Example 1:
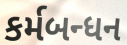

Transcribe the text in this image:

કર્મબન્ધન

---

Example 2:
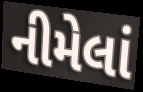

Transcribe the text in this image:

નીમેલાં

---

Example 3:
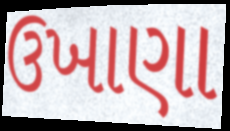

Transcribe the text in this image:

ઉખાણા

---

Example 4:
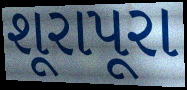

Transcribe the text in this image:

શૂરાપૂરા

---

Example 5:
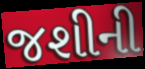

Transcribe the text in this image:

જશીની